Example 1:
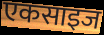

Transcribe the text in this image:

एकसाइज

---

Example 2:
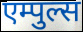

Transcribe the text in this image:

एम्पुल्स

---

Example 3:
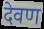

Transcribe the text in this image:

देवण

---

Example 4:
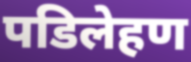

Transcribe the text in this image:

पडिलेहण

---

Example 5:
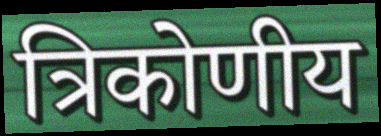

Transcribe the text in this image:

त्रिकोणीय